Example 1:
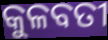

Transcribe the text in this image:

କୁଳବତୀ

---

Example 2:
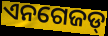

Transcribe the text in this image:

ଏନଗେଜଡ୍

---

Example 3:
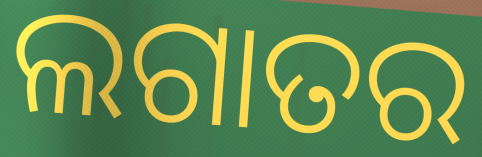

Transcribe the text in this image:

ଲଗାତର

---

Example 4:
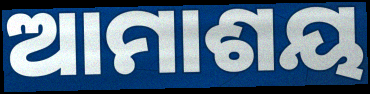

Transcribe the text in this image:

ଆମାଶୟ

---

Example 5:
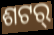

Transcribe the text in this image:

ଶଟର୍